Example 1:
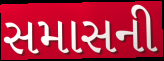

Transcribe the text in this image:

સમાસની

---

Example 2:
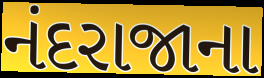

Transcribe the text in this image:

નંદરાજાના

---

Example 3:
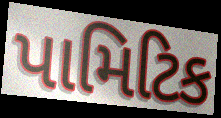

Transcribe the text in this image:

પામિટિક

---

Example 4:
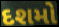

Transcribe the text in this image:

દશમો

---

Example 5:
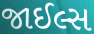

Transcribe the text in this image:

જાઈલ્સ